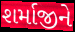
શર્માજીને